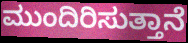
ಮುಂದಿರಿಸುತ್ತಾನೆ